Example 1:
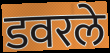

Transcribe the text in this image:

डवरले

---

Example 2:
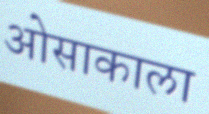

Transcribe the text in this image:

ओसाकाला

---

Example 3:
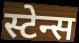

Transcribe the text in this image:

स्टेन्स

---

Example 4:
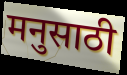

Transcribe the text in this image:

मनुसाठी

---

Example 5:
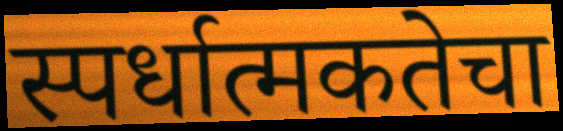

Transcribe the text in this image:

स्पर्धात्मकतेचा